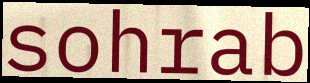
sohrab